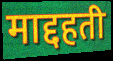
माद्दहती